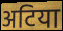
अटिया